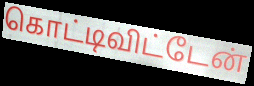
கொட்டிவிட்டேன்